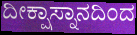
ದೀಕ್ಷಾಸ್ನಾನದಿಂದ